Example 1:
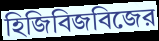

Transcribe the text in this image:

হিজিবিজবিজের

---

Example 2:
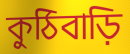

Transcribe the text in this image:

কুঠিবাড়ি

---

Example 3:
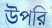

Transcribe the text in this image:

উপরি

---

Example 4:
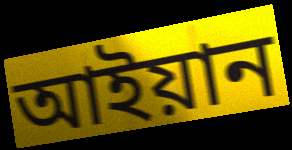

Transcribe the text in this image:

আইয়ান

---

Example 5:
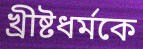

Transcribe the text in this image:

খ্রীষ্টধর্মকে